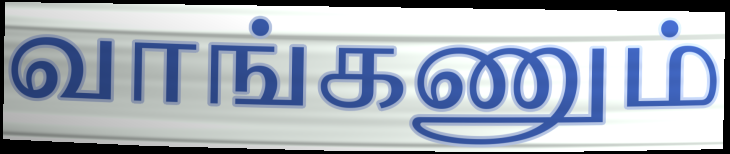
வாங்கணும்